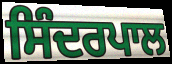
ਸਿੰਦਰਪਾਲ